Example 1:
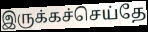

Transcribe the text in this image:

இருக்கச்செய்தே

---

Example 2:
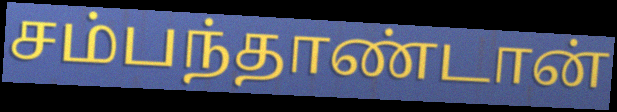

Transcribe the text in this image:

சம்பந்தாண்டான்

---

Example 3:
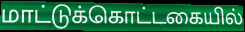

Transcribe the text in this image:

மாட்டுக்கொட்டகையில்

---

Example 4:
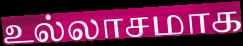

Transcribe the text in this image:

உல்லாசமாக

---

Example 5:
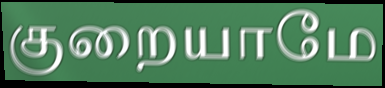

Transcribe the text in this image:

குறையாமே